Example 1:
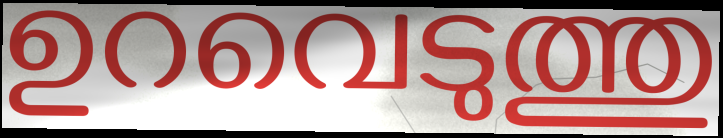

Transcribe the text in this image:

ഉറവെടുത്തു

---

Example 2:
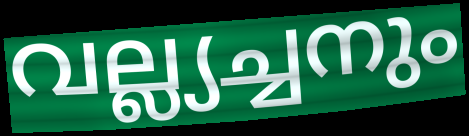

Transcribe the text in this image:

വല്ല്യച്ചനും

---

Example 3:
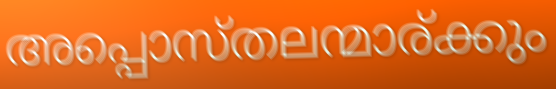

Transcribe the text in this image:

അപ്പൊസ്തലന്മാര്ക്കും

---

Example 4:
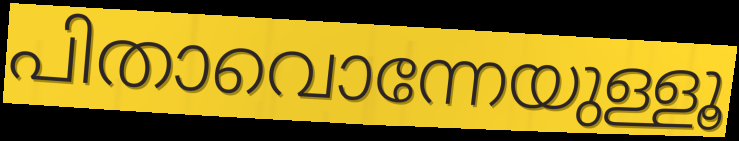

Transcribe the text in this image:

പിതാവൊന്നേയുള്ളൂ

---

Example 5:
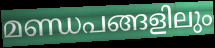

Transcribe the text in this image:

മണ്ഡപങ്ങളിലും